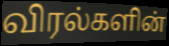
விரல்களின்